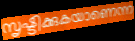
സൃഷ്ടിക്കുകയാണെന്ന